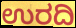
ಉರದಿ